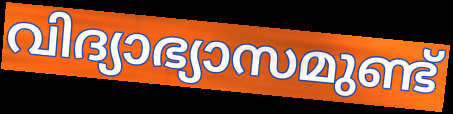
വിദ്യാഭ്യാസമുണ്ട്